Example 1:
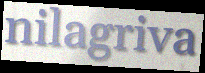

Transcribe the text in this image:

nilagriva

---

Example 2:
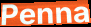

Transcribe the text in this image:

Penna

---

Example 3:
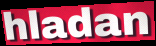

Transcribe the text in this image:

hladan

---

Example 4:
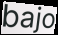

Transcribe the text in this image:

bajo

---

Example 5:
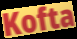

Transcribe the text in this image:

Kofta